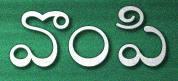
వొంపి